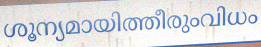
ശൂന്യമായിത്തീരുംവിധം